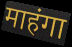
माहंगा